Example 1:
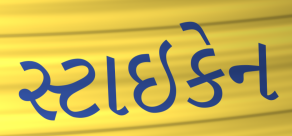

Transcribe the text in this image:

સ્ટાઇકેન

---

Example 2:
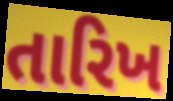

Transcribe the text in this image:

તારિખ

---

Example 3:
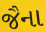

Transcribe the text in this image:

જૈના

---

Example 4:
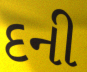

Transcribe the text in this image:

દની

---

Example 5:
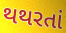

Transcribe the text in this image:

થથરતાં